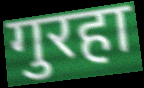
गुरहा